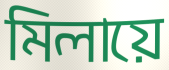
মিলায়ে